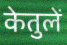
केतुलें